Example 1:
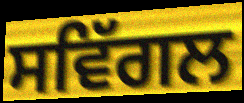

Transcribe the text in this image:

ਸਵਿੱਗਲ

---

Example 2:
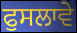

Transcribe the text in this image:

ਫੁਸਲਾਵੇ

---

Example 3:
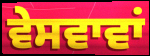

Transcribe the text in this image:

ਵੇਸਵਾਵਾਂ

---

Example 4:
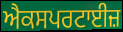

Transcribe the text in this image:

ਐਕਸਪਰਟਾਈਜ਼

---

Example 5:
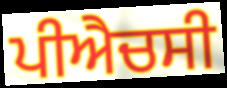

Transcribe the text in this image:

ਪੀਐਚਸੀ